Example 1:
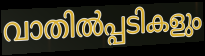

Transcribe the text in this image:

വാതിൽപ്പടികളും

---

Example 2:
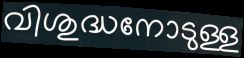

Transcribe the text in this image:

വിശുദ്ധനോടുള്ള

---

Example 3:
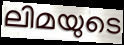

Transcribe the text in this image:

ലിമയുടെ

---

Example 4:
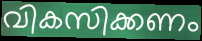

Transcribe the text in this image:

വികസിക്കണം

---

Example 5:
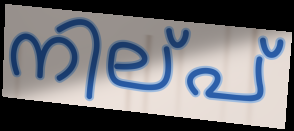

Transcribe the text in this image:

നില്പ്